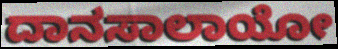
ದಾನಸಾಲಾಯೋ